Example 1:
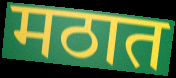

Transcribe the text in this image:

मठात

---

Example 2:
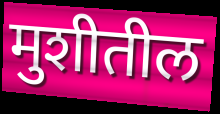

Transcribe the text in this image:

मुशीतील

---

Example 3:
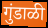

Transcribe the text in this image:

गुंडाळी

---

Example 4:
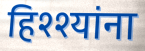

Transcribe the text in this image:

हिश्श्यांना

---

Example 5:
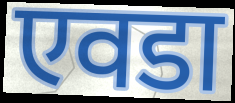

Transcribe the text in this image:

एवडा